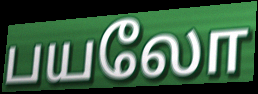
பயலோ